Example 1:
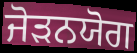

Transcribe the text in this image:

ਜੋੜਨਯੋਗ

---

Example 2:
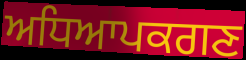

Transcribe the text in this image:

ਅਧਿਆਪਕਗਣ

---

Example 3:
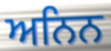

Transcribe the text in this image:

ਅਨਿਨ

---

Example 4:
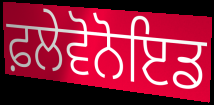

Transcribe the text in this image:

ਫ਼ਲੇਵੋਨੋਇਡ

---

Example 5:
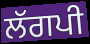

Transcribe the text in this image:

ਲੱਗਪੀ